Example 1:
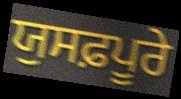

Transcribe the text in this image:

ਯੁਸਫ਼ਪੂਰੇ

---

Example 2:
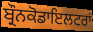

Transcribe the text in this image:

ਬ੍ਰੌਨਕੋਡਾਇਲਟਰਾਂ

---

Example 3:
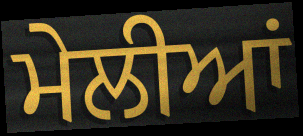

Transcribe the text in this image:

ਮੇਲੀਆਂ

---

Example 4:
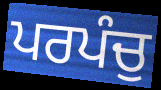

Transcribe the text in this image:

ਪਰਪੰਚੁ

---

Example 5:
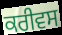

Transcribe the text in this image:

ਕਰੀਵਸ